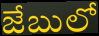
జేబులో